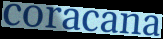
coracana